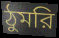
ঠুমরি